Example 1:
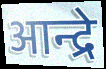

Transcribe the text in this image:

आन्द्रे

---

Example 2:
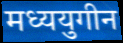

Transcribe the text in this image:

मध्ययुगीन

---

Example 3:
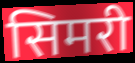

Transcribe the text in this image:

सिमरी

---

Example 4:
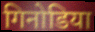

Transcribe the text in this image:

गिनोडिया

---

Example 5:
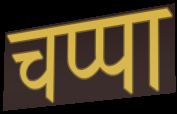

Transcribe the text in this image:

चप्पा